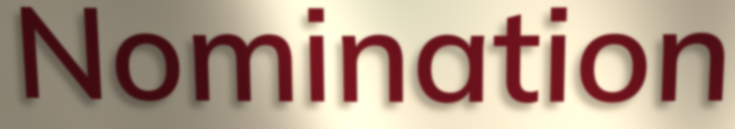
Nomination